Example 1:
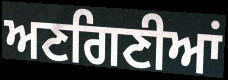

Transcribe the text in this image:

ਅਣਗਿਣੀਆਂ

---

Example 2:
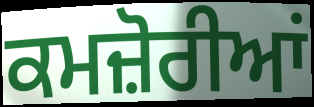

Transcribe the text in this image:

ਕਮਜ਼ੋਰੀਆਂ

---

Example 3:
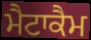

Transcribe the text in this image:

ਮੈਟਾਕੈਮ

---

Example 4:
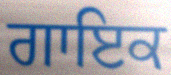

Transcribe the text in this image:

ਗਾਇਕ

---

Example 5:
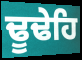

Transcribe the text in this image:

ਢੂਢੇਹਿ